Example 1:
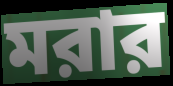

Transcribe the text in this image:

মরার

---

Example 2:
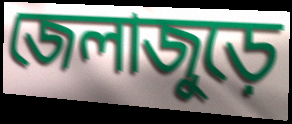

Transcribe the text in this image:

জেলাজুড়ে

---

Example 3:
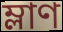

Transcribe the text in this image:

ম্লাণ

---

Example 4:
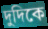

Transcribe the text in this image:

দুদিকে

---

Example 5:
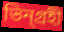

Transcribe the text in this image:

ভিন্গ্রহী